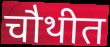
चौथीत